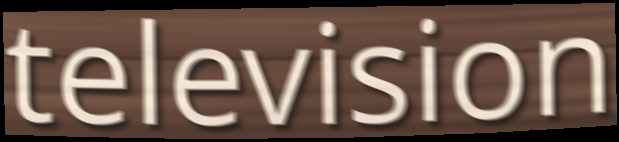
television